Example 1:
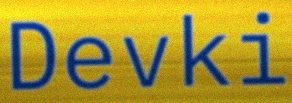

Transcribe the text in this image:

Devki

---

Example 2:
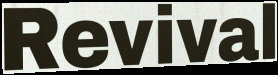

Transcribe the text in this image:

Revival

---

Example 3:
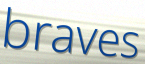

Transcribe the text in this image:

braves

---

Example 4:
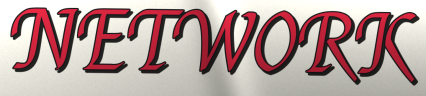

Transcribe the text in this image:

NETWORK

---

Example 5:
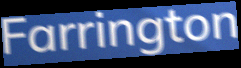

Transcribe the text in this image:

Farrington